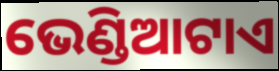
ଭେଣ୍ଡିଆଟାଏ